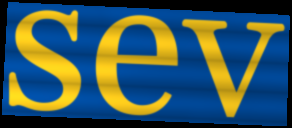
sev